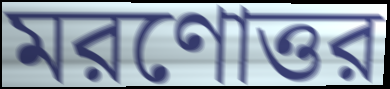
মরণোত্তর